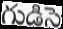
గుడిసె